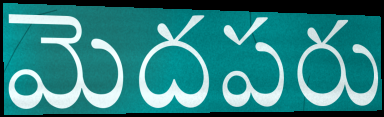
మెదపరు